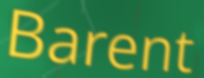
Barent